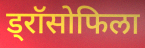
ड्रॉसोफिला